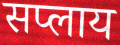
सप्लाय